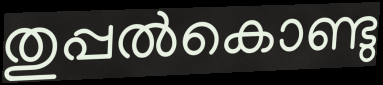
തുപ്പൽകൊണ്ടു